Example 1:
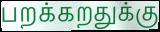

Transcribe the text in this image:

பறக்கறதுக்கு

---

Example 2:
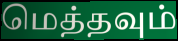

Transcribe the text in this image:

மெத்தவும்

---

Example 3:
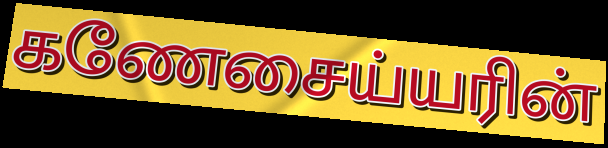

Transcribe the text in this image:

கணேசைய்யரின்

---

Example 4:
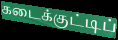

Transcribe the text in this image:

கடைக்குட்டிப்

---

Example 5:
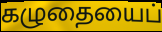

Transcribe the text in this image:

கழுதையைப்